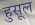
हुसूल